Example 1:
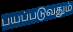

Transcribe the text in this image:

பயப்படுவதும்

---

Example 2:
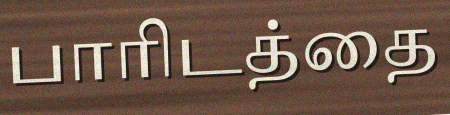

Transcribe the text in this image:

பாரிடத்தை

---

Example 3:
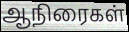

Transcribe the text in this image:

ஆநிரைகள்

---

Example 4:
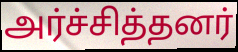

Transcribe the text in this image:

அர்ச்சித்தனர்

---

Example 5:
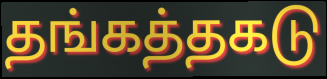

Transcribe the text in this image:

தங்கத்தகடு